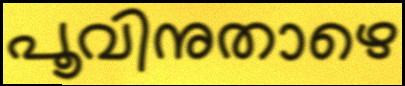
പൂവിനുതാഴെ